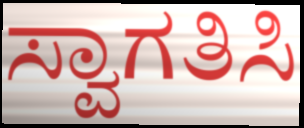
ಸ್ವಾಗತಿಸಿ